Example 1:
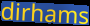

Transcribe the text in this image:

dirhams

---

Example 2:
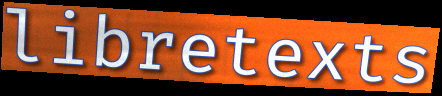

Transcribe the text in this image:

libretexts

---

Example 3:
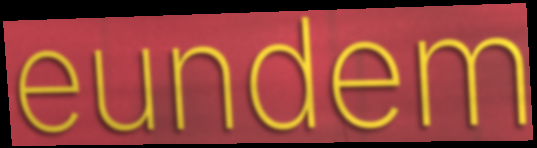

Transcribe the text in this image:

eundem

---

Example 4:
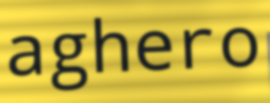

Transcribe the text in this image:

aghero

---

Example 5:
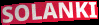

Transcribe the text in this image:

SOLANKI